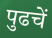
पुढचें